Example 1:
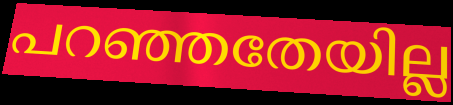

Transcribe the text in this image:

പറഞ്ഞതേയില്ല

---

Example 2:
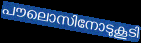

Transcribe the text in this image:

പൗലൊസിനോടുകൂടി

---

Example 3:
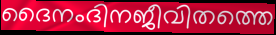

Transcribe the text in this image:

ദൈനംദിനജീവിതത്തെ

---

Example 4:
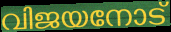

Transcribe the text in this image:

വിജയനോട്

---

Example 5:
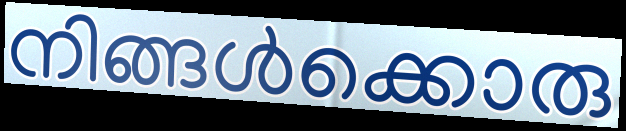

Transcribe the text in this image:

നിങ്ങൾക്കൊരു